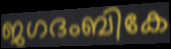
ജഗദംബികേ